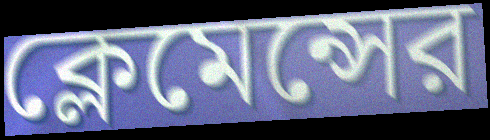
ক্লেমেন্সের